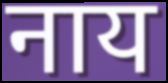
नाय